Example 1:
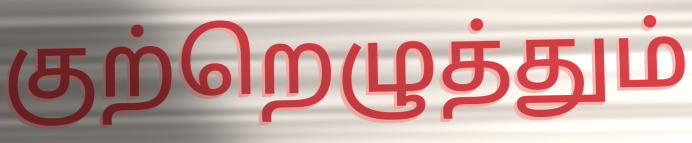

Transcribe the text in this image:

குற்றெழுத்தும்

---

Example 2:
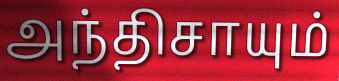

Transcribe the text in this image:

அந்திசாயும்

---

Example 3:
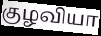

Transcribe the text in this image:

குழவியா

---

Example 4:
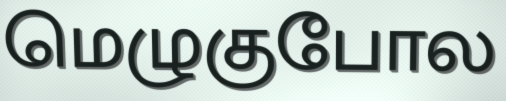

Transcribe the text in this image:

மெழுகுபோல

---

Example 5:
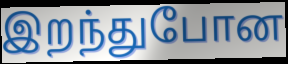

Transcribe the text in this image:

இறந்துபோன